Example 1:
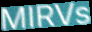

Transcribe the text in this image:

MIRVs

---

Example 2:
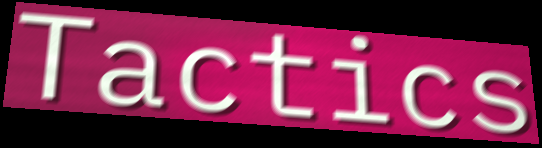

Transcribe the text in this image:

Tactics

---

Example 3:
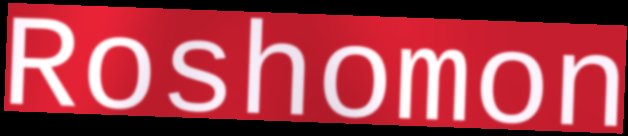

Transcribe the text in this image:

Roshomon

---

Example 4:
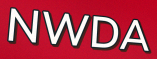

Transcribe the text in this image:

NWDA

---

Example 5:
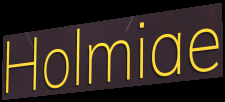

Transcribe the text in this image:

Holmiae